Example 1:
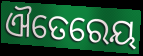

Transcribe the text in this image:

ଐତେରେୟ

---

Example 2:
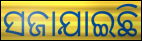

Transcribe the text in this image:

ସଜାଯାଇଛି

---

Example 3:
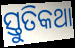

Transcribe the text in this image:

ସ୍ତୁତିକଥା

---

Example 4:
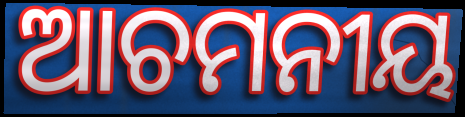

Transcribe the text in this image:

ଆଚମନୀୟ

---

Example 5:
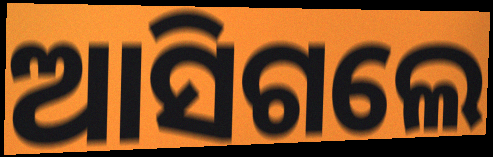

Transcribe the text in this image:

ଆସିଗଲେ